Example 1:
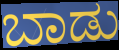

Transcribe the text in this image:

ಬಾಡು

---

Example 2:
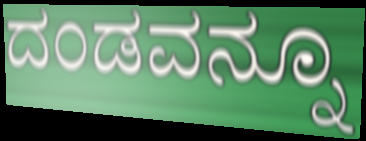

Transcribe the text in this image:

ದಂಡವನ್ನೂ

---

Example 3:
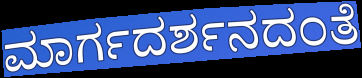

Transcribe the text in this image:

ಮಾರ್ಗದರ್ಶನದಂತೆ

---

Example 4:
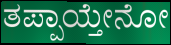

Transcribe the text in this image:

ತಪ್ಪಾಯ್ತೇನೋ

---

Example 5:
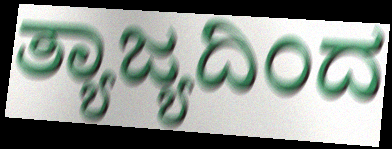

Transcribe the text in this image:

ತ್ಯಾಜ್ಯದಿಂದ